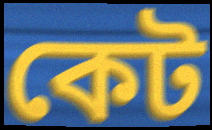
কেট